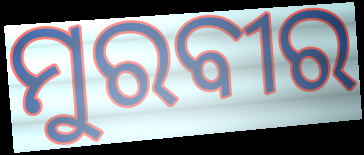
ମୁରବୀର